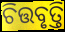
ଚିତ୍ତବୃତ୍ତି